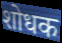
शोधक